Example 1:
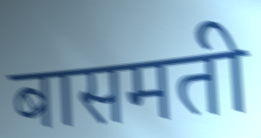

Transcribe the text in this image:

बासमती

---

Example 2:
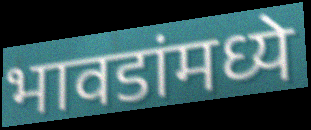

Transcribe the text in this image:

भावडांमध्ये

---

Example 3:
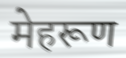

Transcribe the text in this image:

मेहरूण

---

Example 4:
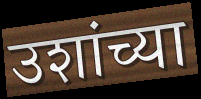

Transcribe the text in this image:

उशांच्या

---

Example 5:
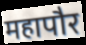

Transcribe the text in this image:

महापौर